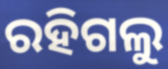
ରହିଗଲୁ